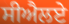
ਸੀਐਲਏ